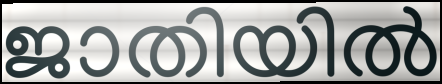
ജാതിയിൽ